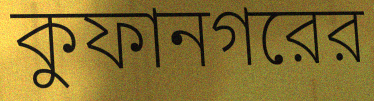
কুফানগরের